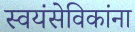
स्वयंसेविकांना